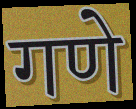
गणे